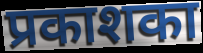
प्रकाशका